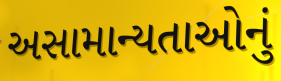
અસામાન્યતાઓનું